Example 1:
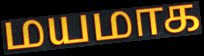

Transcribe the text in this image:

மயமாக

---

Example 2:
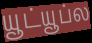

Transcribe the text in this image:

யூட்யூப்ல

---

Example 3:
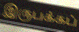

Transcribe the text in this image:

இருபக்கப்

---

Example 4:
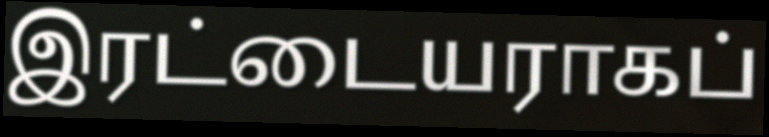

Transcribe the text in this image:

இரட்டையராகப்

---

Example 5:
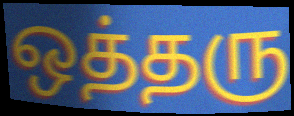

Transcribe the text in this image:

ஒத்தரு